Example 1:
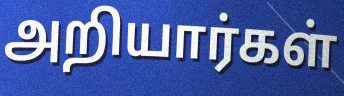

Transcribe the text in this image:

அறியார்கள்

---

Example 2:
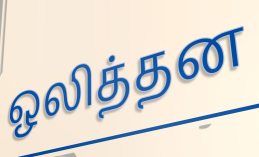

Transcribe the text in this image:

ஒலித்தன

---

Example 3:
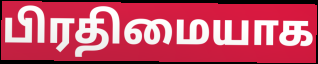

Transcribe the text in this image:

பிரதிமையாக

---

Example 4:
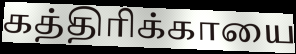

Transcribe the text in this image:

கத்திரிக்காயை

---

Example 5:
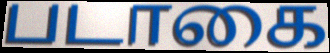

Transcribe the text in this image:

படாகை